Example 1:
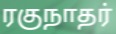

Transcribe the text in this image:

ரகுநாதர்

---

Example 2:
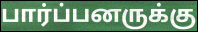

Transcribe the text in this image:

பார்ப்பனருக்கு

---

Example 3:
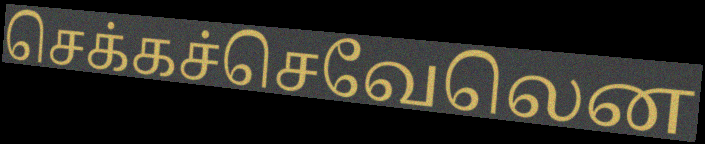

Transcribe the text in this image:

செக்கச்செவேலென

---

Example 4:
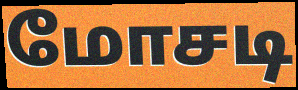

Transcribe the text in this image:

மோசடி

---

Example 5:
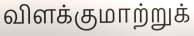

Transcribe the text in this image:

விளக்குமாற்றுக்